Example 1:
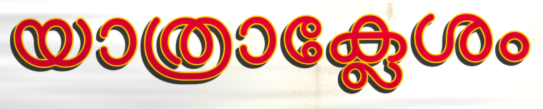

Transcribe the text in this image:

യാത്രാക്ലേശം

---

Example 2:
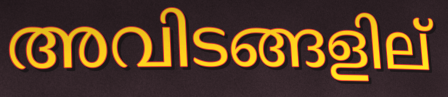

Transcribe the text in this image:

അവിടങ്ങളില്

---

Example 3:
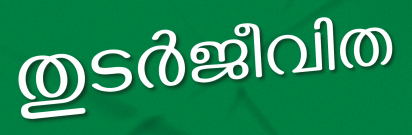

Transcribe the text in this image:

തുടർജീവിത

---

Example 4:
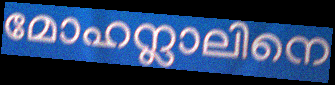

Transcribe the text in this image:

മോഹന്ലാലിനെ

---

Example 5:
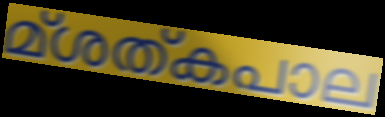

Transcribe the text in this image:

മ്ശത്കപാല